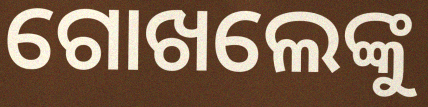
ଗୋଖଲେଙ୍କୁ